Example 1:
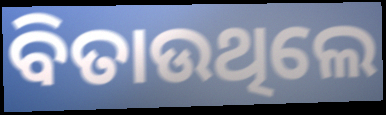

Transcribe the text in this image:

ବିତାଉଥିଲେ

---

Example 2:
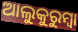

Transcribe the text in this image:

ଆଲୁକୁରୁମ୍ବା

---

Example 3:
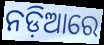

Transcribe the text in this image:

ନଡ଼ିଆରେ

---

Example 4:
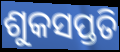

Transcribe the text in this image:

ଶୁକସପ୍ତତି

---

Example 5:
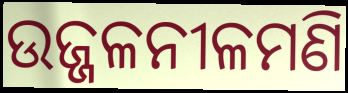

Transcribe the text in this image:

ଉଜ୍ଜଳନୀଳମଣି